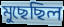
মুছেছিল